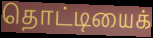
தொட்டியைக்